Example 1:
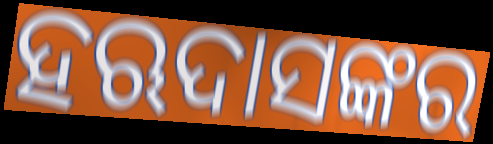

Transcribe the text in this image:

ହଋଦାସଙ୍କର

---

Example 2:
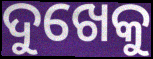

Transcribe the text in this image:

ଦୁଖେକୁ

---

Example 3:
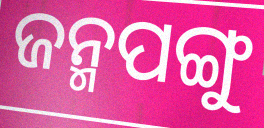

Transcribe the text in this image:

ଜନ୍ମପଙ୍ଗୁ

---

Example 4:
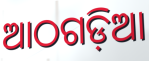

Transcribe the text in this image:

ଆଠଗଡ଼ିଆ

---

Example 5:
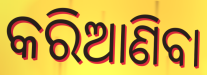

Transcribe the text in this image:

କରିଆଣିବା